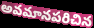
అవమానపరిచిన